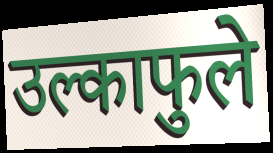
उल्काफुले